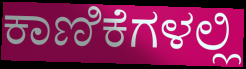
ಕಾಣಿಕೆಗಳಲ್ಲಿ